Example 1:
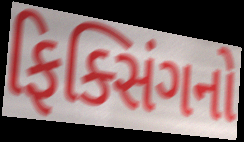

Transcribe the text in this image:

ફિક્સિંગનો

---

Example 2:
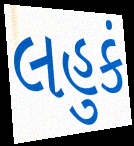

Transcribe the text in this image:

લહુકં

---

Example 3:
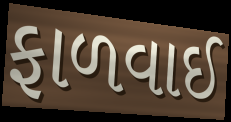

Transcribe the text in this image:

ફાળવાઈ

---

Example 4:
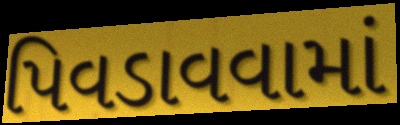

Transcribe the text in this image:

પિવડાવવામાં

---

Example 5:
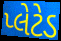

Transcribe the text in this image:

પ્લેટેડ